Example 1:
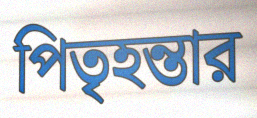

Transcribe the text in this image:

পিতৃহন্তার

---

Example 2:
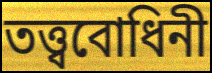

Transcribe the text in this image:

তত্ত্ববোধিনী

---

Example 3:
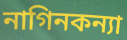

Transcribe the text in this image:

নাগিনকন্যা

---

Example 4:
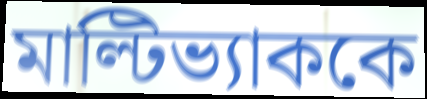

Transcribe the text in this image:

মাল্টিভ্যাককে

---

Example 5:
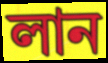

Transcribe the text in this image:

লান